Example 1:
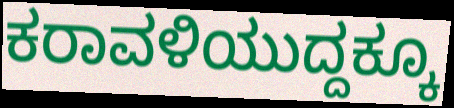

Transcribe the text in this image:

ಕರಾವಳಿಯುದ್ದಕ್ಕೂ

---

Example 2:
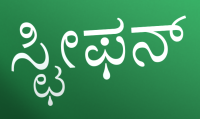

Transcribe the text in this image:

ಸ್ಟೀಫನ್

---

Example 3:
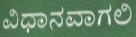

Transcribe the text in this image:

ವಿಧಾನವಾಗಲಿ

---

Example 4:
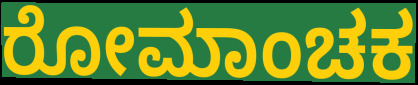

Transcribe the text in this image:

ರೋಮಾಂಚಕ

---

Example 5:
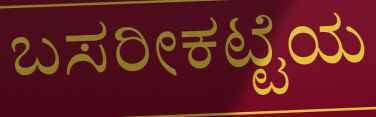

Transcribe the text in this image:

ಬಸರೀಕಟ್ಟೆಯ